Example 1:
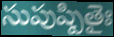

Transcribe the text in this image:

సుపుష్పితైః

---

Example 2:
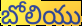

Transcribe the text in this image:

బోలియు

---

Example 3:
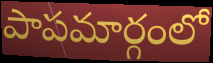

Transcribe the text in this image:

పాపమార్గంలో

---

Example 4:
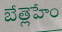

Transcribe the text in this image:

బేత్లెహేం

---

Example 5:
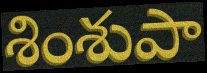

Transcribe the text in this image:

శింశుపా